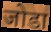
जोडा